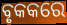
ବୃକକରେ